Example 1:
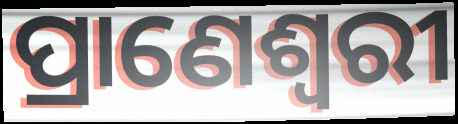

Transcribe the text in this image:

ପ୍ରାଣେଶ୍ୱରୀ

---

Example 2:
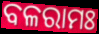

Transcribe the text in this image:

ବଳରାମଃ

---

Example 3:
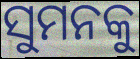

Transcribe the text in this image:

ସୁମନକୁ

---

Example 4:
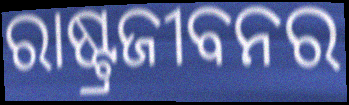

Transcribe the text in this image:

ରାଷ୍ଟ୍ରଜୀବନର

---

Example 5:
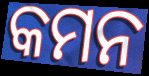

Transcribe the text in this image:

କମନ